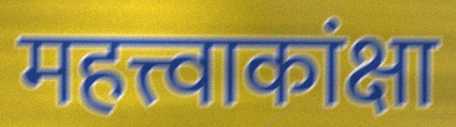
महत्त्वाकांक्षा